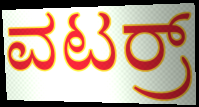
ವಟರ್ರ್